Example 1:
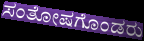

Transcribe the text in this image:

ಸಂತೋಷಗೊಂಡರು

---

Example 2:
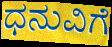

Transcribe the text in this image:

ಧನುವಿಗೆ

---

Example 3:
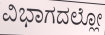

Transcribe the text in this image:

ವಿಭಾಗದಲ್ಲೋ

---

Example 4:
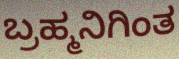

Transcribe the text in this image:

ಬ್ರಹ್ಮನಿಗಿಂತ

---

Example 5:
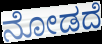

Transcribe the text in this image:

ನೋಡದೆ